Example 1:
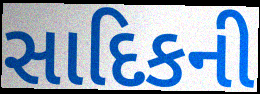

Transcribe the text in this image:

સાદિકની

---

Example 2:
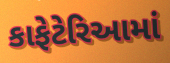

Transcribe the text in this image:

કાફેટેરિઆમાં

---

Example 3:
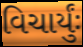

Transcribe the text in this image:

વિચાર્યુંઃ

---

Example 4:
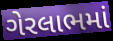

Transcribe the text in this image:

ગેરલાભમાં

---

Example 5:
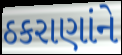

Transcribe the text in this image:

ઠકરાણાંને